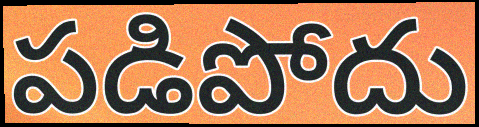
పడిపోదు